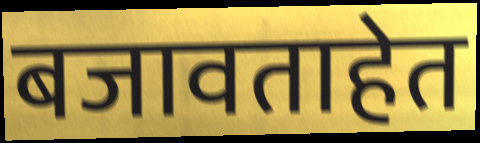
बजावताहेत